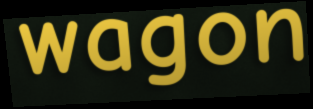
wagon